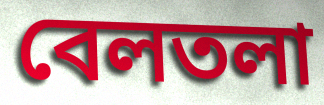
বেলতলা